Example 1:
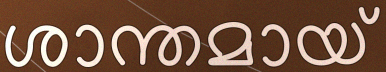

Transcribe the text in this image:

ശാന്തമായ്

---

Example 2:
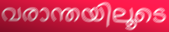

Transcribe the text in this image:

വരാന്തയിലൂടെ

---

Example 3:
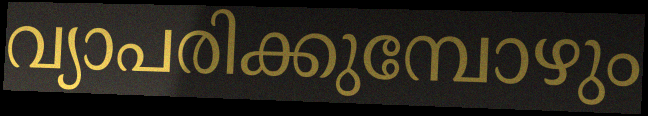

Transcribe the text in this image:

വ്യാപരിക്കുമ്പോഴും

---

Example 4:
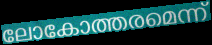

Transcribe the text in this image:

ലോകോത്തരമെന്ന്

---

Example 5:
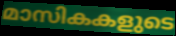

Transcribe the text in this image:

മാസികകളുടെ